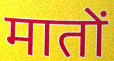
मातों